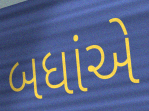
બધાંએ